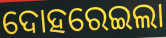
ଦୋହରେଇଲା